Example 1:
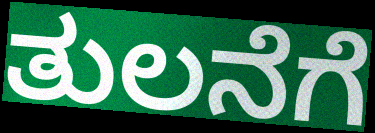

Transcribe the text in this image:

ತುಲನೆಗೆ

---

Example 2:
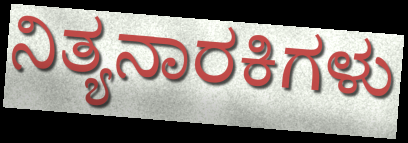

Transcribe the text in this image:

ನಿತ್ಯನಾರಕಿಗಳು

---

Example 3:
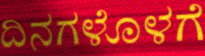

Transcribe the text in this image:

ದಿನಗಳೊಳಗೆ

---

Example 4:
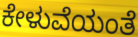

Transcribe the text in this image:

ಕೇಳುವೆಯಂತೆ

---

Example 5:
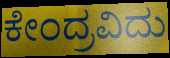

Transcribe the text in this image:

ಕೇಂದ್ರವಿದು